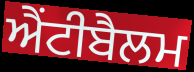
ਐਂਟੀਬੈਲਮ